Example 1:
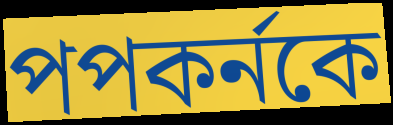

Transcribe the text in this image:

পপকর্নকে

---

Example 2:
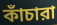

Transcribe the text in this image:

কাঁচারা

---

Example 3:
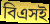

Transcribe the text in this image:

বিএসই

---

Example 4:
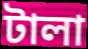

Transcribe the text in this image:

টালা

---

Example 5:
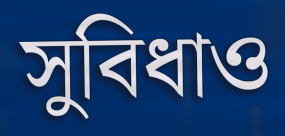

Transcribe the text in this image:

সুবিধাও